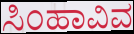
ಸಿಂಹಾವಿವ